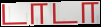
டாடா